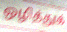
ஒழித்துக்